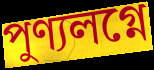
পুণ্যলগ্নে